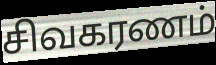
சிவகரணம்